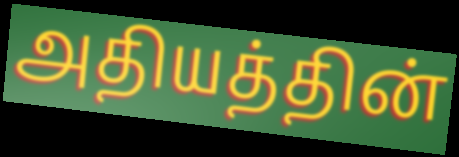
அதியத்தின்